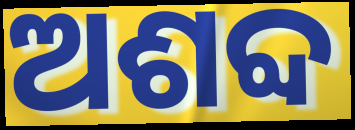
ଅଶବ୍ଦ